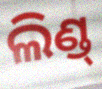
ଲିଣ୍ଡ୍